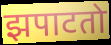
झपाटतो